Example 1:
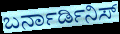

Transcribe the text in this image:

ಬರ್ನಾರ್ಡಿನಿಸ್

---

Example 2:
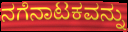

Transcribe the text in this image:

ನಗೆನಾಟಕವನ್ನು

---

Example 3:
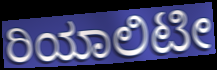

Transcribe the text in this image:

ರಿಯಾಲಿಟೀ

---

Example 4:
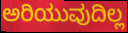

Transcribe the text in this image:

ಅರಿಯುವುದಿಲ್ಲ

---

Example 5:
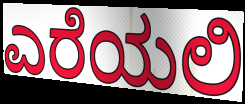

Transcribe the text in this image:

ಎರೆಯಲಿ